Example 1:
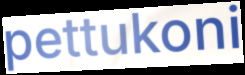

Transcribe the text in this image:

pettukoni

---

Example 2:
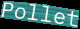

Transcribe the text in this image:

Pollet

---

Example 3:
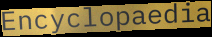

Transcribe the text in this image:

Encyclopaedia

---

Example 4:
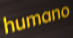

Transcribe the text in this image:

humano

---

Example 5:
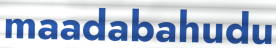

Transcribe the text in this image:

maadabahudu